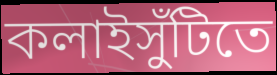
কলাইসুঁটিতে